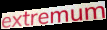
extremum